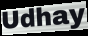
Udhay